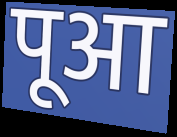
पूआ